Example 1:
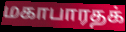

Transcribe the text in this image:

மகாபாரதக்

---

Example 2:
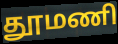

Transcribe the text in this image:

தூமணி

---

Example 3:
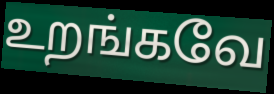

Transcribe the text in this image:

உறங்கவே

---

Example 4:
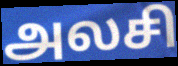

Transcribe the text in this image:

அலசி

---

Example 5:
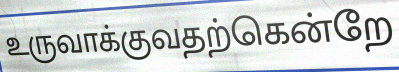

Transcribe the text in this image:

உருவாக்குவதற்கென்றே